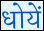
धोयें